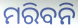
ମରିବନି